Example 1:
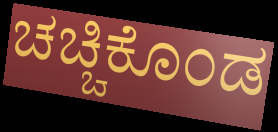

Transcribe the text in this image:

ಚಚ್ಚಿಕೊಂಡ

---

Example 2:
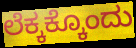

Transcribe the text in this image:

ಲೆಕ್ಕಕ್ಕೊಂದು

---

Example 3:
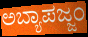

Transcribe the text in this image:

ಅಬ್ಯಾಪಜ್ಜಂ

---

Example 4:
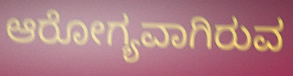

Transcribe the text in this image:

ಆರೋಗ್ಯವಾಗಿರುವ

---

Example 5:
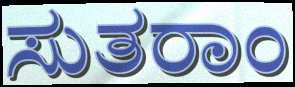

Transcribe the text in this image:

ಸುತರಾಂ